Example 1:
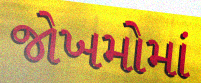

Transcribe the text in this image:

જોખમોમાં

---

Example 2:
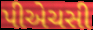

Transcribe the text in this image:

પીએચસી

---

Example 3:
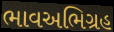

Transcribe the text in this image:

ભાવઅભિગ્રહ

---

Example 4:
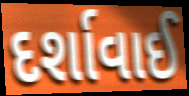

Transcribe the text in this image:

દર્શાવાઈ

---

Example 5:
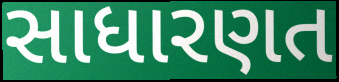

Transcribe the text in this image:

સાધારણત